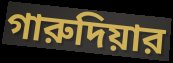
গারুদিয়ার